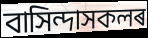
বাসিন্দাসকলৰ